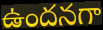
ఉందనగా